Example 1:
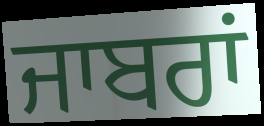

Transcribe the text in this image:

ਜਾਬਰਾਂ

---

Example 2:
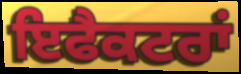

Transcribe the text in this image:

ਇਫੈਕਟਰਾਂ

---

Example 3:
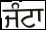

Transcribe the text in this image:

ਜੰਟਾ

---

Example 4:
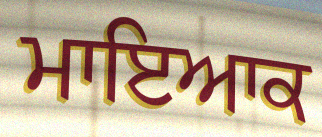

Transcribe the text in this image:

ਮਾਇਆਕ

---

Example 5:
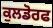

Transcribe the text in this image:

ਕੁਲਡੋਰਫ